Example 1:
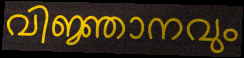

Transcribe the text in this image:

വിജ്ഞാനവും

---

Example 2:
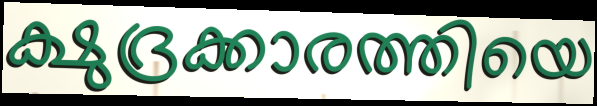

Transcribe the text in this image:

ക്ഷുദ്രക്കാരത്തിയെ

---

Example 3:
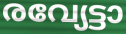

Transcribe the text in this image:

രവ്യേട്ടാ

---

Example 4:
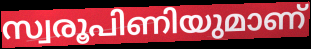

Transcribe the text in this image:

സ്വരൂപിണിയുമാണ്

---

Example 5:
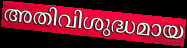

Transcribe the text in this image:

അതിവിശുദ്ധമായ